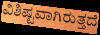
ವಿಶಿಷ್ಟವಾಗಿರುತ್ತದೆ